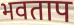
भवताप